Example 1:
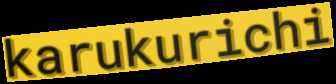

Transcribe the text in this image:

karukurichi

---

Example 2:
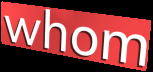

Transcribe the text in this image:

whom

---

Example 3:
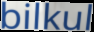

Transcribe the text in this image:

bilkul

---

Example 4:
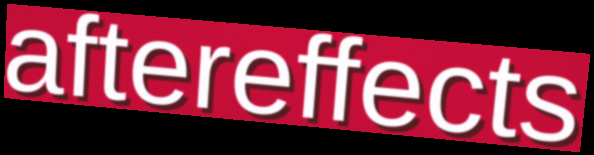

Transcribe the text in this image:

aftereffects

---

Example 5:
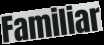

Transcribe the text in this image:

Familiar